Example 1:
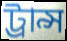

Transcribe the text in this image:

ট্রান্স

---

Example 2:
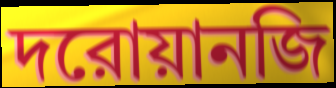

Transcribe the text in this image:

দরোয়ানজি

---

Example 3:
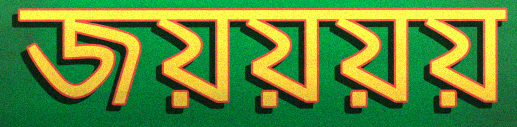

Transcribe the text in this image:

জয়য়য়য়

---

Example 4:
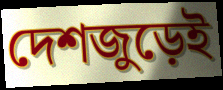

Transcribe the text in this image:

দেশজুড়েই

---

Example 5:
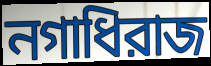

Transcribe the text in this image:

নগাধিরাজ